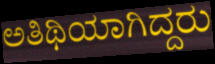
ಅತಿಥಿಯಾಗಿದ್ದರು